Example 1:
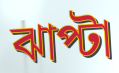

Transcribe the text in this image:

ঝাপ্টা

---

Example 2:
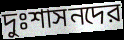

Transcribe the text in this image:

দুঃশাসনদের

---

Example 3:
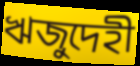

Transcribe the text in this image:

ঋজুদেহী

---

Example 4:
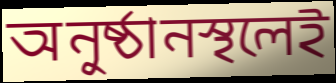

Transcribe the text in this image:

অনুষ্ঠানস্থলেই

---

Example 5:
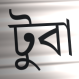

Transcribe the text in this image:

টুবা